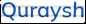
Quraysh